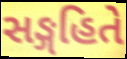
સઙ્ગહિતે